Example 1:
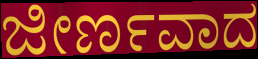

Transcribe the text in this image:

ಜೀರ್ಣವಾದ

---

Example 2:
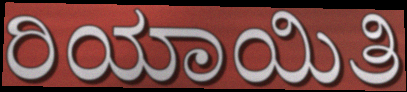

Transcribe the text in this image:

ರಿಯಾಯಿತಿ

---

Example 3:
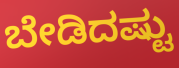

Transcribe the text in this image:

ಬೇಡಿದಷ್ಟು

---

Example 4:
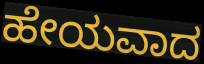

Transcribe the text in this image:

ಹೇಯವಾದ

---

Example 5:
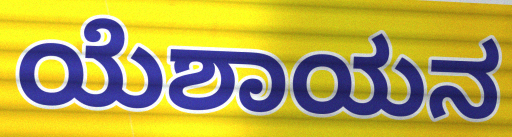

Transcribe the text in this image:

ಯೆಶಾಯನ